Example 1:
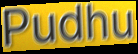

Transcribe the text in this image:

Pudhu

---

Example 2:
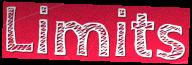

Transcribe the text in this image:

Limits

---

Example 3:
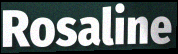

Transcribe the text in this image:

Rosaline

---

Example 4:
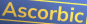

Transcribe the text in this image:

Ascorbic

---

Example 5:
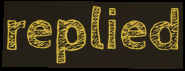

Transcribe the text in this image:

replied